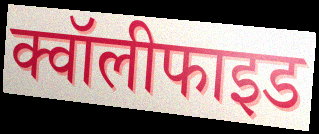
क्वॉलीफाइड